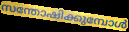
സന്തോഷിക്കുമ്പോൾ